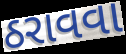
ઠરાવવા